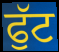
ਫੁੱਟ